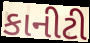
કાનીટી